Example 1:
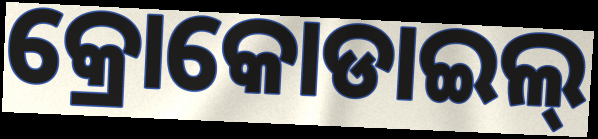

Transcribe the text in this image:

କ୍ରୋକୋଡାଇଲ୍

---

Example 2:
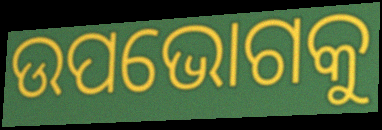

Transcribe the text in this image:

ଉପଭୋଗକୁ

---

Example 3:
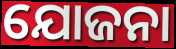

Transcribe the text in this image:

ଯୋଜନା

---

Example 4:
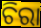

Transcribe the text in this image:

ଚିରା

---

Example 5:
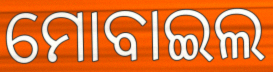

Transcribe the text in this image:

ମୋବାଇଲ